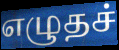
எழுதச்